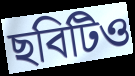
ছবিটিও